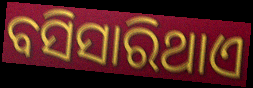
ବସିସାରିଥାଏ